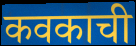
कवकाची